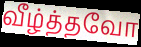
வீழ்த்தவோ